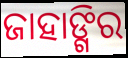
ଜାହାଙ୍ଗିର